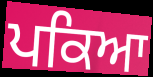
ਪਕਿਆ